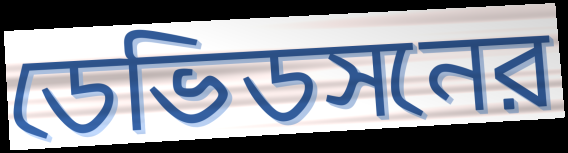
ডেভিডসনের